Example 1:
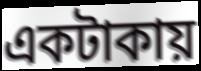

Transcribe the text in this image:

একটাকায়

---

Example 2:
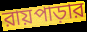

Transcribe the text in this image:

রায়পাড়ার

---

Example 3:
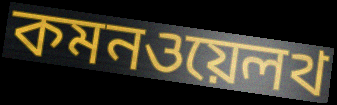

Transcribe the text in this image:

কমনওয়েলথ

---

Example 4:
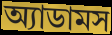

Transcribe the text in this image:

অ্যাডামস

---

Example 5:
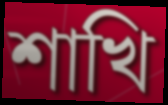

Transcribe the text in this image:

শাখি